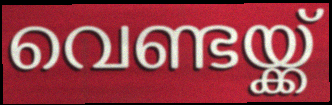
വെണ്ടയ്ക്ക്